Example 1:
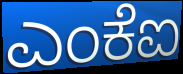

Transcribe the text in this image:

ಎಂಕೆಐ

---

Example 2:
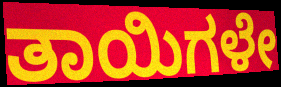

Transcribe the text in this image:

ತಾಯಿಗಳೇ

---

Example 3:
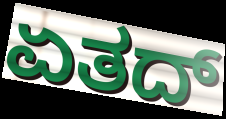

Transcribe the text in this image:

ಏತದ್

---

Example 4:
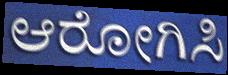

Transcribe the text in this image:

ಆರೋಗಿಸಿ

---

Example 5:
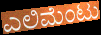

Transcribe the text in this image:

ಎಲಿಮೆಂಟು